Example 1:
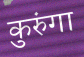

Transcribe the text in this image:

कुरुंगा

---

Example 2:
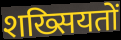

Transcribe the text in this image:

शख्सियतों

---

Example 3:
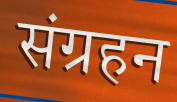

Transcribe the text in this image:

संग्रहन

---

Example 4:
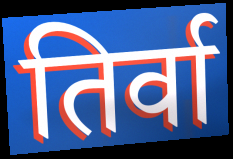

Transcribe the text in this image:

तिर्वा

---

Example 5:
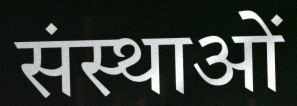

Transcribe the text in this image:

संस्‍थाओं